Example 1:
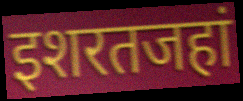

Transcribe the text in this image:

इशरतजहां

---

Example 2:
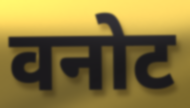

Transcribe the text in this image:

वनोट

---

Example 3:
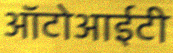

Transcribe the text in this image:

ऑटोआईटी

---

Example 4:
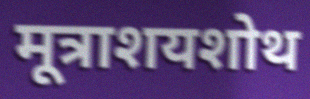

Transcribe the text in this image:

मूत्राशयशोथ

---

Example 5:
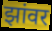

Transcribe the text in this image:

झांवर